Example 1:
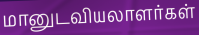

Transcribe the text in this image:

மானுடவியலாளர்கள்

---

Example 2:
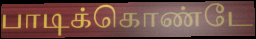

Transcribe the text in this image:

பாடிக்கொண்டே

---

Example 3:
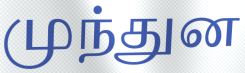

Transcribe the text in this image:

முந்துன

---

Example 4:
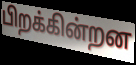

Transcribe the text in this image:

பிறக்கின்றன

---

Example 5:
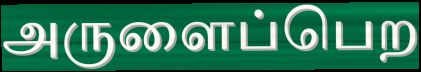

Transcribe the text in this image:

அருளைப்பெற